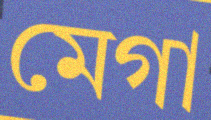
মেগা